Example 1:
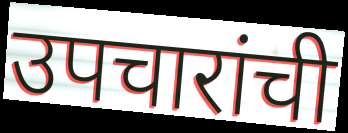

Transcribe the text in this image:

उपचारांची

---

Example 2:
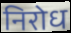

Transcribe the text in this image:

निरोध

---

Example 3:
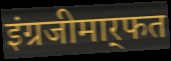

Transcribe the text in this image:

इंग्रजीमार्फत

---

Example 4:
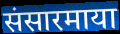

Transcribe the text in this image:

संसारमाया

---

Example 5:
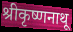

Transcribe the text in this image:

श्रीकृष्णनाथू